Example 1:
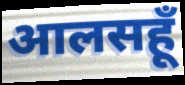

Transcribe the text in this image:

आलसहूँ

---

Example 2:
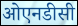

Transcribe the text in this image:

ओएनडीसी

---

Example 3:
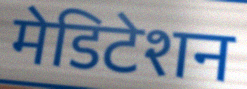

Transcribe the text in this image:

मेडिटेशन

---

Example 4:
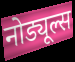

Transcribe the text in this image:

नोड्यूल्स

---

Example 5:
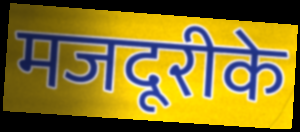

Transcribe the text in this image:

मजदूरीके